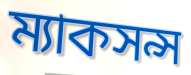
ম্যাকসন্স